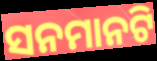
ସନମାନଟି